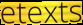
etexts